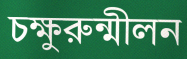
চক্ষুরুন্মীলন